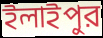
ইলাইপুর